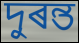
দুৰন্ত